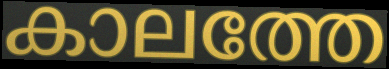
കാലത്തേ